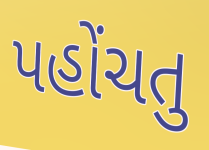
પહોંચતુ